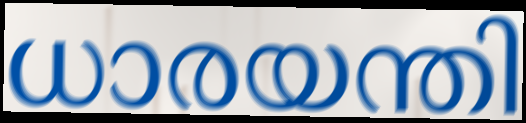
ധാരയന്തി